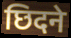
छिदने